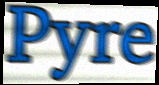
Pyre